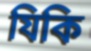
যিকি